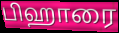
பிஹாரை